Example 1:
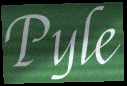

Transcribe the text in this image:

Pyle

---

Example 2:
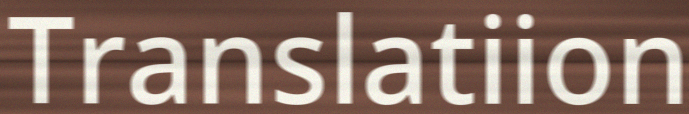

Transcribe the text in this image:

Translatiion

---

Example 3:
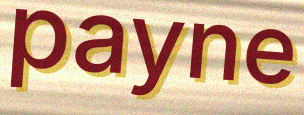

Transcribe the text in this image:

payne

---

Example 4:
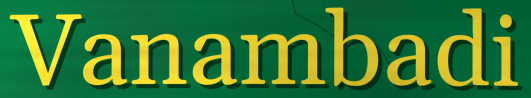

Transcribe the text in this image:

Vanambadi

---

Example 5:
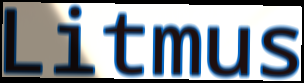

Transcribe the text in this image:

Litmus